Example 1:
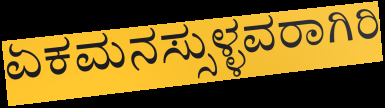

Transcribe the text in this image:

ಏಕಮನಸ್ಸುಳ್ಳವರಾಗಿರಿ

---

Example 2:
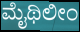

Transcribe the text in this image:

ಮೈಥಿಲೀಂ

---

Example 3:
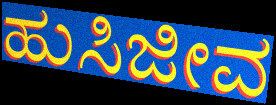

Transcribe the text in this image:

ಹುಸಿಜೀವ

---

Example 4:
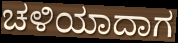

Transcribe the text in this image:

ಚಳಿಯಾದಾಗ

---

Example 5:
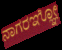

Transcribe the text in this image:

ನಾಗರಞ್ಞೋ